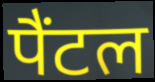
पैंटल